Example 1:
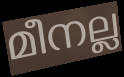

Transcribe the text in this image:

മീനല്ല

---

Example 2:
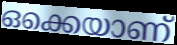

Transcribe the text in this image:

ഒക്കെയാണ്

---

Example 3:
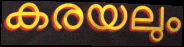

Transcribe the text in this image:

കരയലും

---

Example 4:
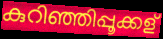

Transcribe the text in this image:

കുറിഞ്ഞിപ്പൂക്കള്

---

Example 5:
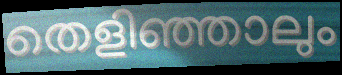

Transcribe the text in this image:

തെളിഞ്ഞാലും